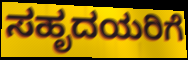
ಸಹೃದಯರಿಗೆ